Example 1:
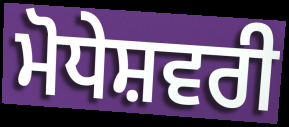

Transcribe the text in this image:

ਮੋਧੇਸ਼ਵਰੀ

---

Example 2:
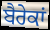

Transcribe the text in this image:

ਬੈਰੇਕਾਂ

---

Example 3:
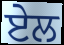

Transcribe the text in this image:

ਏਲ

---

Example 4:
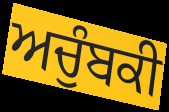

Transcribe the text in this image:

ਅਚੁੰਬਕੀ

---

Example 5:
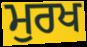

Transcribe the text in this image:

ਮੁਰਖ